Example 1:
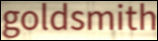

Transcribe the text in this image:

goldsmith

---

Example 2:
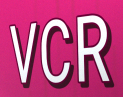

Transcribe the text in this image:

VCR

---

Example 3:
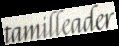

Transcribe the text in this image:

tamilleader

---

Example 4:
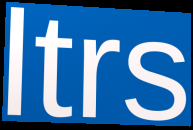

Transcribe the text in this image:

ltrs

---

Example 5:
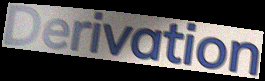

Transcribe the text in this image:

Derivation